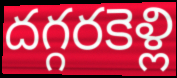
దగ్గరకెళ్లి